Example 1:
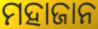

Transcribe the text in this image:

ମହାଜାନ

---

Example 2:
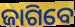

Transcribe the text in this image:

ଜାଗିବେ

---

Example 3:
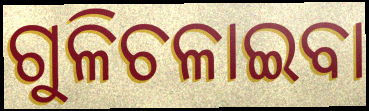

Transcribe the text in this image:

ଗୁଳିଚଳାଇବା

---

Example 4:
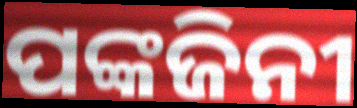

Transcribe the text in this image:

ପଙ୍କଜିନୀ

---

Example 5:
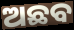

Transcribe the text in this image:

ଅଛବ